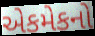
એકમેકનો